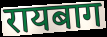
रायबाग